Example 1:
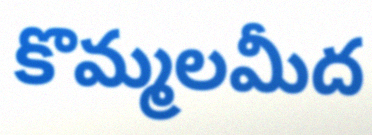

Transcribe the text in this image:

కొమ్మలమీద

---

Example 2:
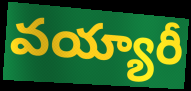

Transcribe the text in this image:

వయ్యారీ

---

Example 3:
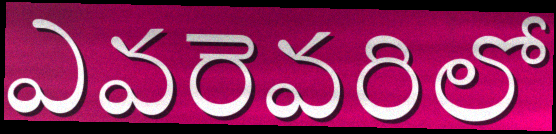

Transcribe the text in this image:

ఎవరెవరిలో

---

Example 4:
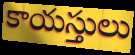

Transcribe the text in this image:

కాయస్తులు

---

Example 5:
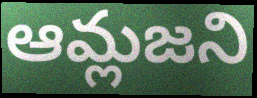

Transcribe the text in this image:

ఆమ్లజని